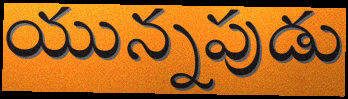
యున్నపుడు